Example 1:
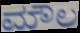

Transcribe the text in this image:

ಮೌಲ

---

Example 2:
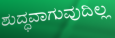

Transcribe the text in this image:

ಶುದ್ಧವಾಗುವುದಿಲ್ಲ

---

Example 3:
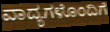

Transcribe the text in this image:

ವಾದ್ಯಗಳೊಂದಿಗೆ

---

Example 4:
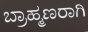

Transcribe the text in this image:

ಬ್ರಾಹ್ಮಣರಾಗಿ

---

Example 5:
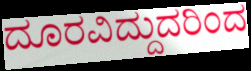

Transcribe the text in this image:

ದೂರವಿದ್ದುದರಿಂದ